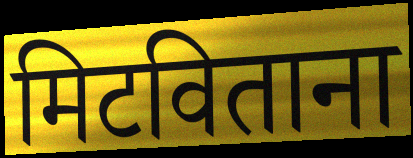
मिटविताना